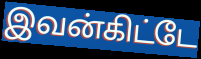
இவன்கிட்டே